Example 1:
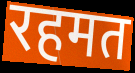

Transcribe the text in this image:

रहमत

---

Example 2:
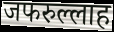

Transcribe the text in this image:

जफरुल्लाह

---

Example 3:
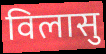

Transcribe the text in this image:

विलासु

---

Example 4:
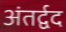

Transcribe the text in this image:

अंतर्द्वद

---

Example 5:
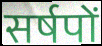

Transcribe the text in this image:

सर्षपों